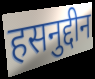
हसनुद्दीन